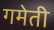
गमेती